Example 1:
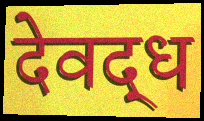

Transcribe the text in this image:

देवद्ध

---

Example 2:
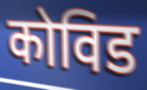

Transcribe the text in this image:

कोविड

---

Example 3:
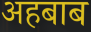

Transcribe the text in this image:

अहबाब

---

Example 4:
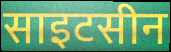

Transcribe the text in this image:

साइटसीन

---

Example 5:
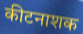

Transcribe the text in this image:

कीटनाशक